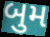
બુમ